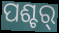
ପଶ୍ଚର୍